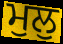
ਮੁਲੁ